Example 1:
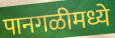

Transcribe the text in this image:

पानगळीमध्ये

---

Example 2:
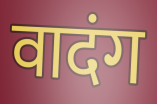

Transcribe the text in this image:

वादंग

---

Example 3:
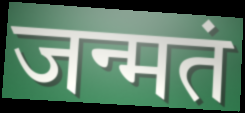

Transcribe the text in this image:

जन्मतं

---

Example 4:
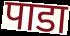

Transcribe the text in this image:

पाडा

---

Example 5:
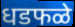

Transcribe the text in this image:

धडफळे